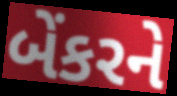
બેંકરને